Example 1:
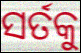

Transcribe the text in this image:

ସର୍ତକୁ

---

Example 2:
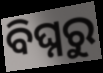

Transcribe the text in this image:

ବିଘ୍ନରୁ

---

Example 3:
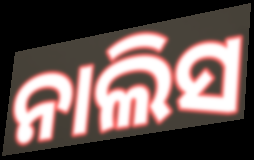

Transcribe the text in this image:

ନାଲିସ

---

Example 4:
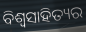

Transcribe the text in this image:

ବିଶ୍ୱସାହିତ୍ୟର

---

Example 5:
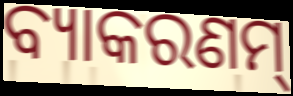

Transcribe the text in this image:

ବ୍ୟାକରଣମ୍